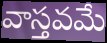
వాస్తవమే